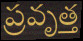
ప్రవృత్త